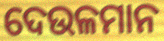
ଦେଉଳମାନ